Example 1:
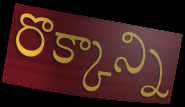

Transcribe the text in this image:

రొక్కాన్ని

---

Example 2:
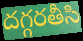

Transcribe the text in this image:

దగ్గరతీసి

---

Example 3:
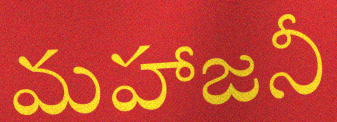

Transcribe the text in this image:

మహాజనీ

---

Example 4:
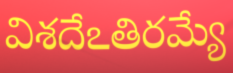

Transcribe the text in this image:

విశదేఽతిరమ్యే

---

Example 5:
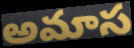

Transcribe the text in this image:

అమాస